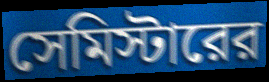
সেমিস্টারের